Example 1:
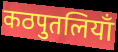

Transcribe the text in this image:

कठपुतलियाँ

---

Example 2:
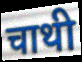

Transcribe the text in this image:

चाथी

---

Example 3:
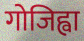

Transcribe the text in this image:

गोजिह्वा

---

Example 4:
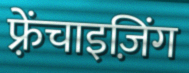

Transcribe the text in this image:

फ़्रेंचाइज़िंग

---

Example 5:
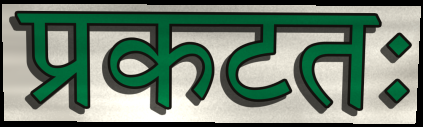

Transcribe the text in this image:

प्रकटतः